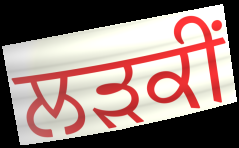
ਲੜਕੀਂ